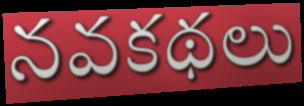
నవకథలు